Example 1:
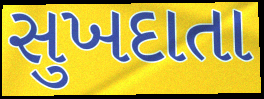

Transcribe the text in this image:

સુખદાતા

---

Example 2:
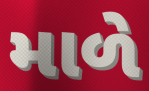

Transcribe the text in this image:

માળે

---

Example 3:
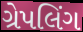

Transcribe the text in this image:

ગ્રેપલિંગ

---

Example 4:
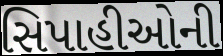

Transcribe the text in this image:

સિપાહીઓની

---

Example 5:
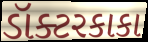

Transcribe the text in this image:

ડૉક્ટરકાકા